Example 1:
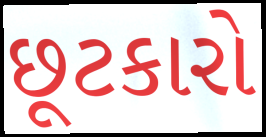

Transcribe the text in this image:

છૂટકારો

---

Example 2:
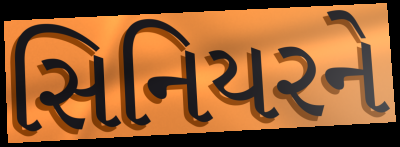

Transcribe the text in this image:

સિનિયરને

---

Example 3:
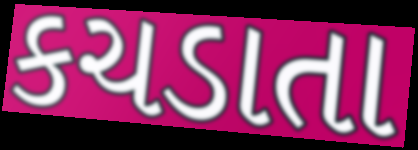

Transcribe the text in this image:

કચડાતા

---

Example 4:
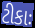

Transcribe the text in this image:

ટીકાઃ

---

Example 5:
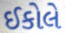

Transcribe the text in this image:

ઈકોલે